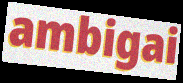
ambigai